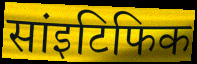
सांइटिफिक